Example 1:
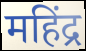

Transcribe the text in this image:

महिंद्र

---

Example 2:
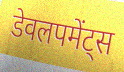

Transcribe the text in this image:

डेवलपमेंट्स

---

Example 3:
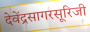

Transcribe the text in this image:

देवेंद्रसागरसूरिजी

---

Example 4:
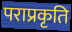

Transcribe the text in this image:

पराप्रकृति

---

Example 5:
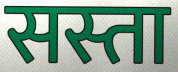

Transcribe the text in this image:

सस्‍ता